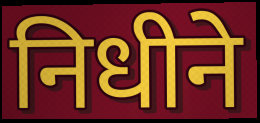
निधीने